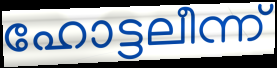
ഹോട്ടലീന്ന്